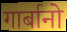
गार्बानो